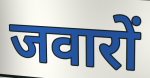
जवारों